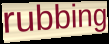
rubbing